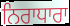
ਨਿਰਾਧਾਰਾ